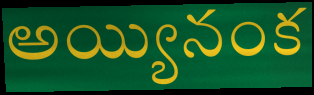
అయ్యినంక